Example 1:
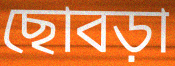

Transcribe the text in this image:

ছোবড়া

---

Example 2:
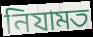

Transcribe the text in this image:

নিযামত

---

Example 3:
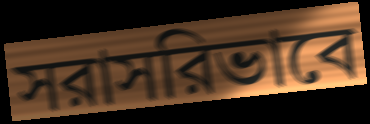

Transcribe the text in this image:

সরাসরিভাবে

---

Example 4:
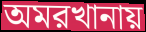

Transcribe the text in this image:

অমরখানায়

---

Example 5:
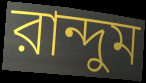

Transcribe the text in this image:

রান্দুম